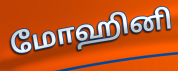
மோஹினி